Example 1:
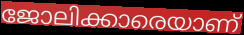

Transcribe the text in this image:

ജോലിക്കാരെയാണ്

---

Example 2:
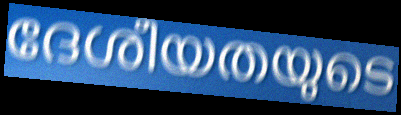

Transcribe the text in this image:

ദേശീയതയുടെ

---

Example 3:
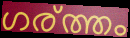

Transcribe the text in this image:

ഗര്ത്തം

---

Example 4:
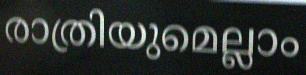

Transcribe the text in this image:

രാത്രിയുമെല്ലാം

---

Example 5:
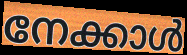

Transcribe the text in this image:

നേക്കാൾ